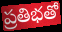
ప్రతిభతో